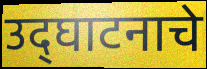
उद्‌घाटनाचे